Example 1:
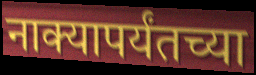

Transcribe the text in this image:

नाक्यापर्यंतच्या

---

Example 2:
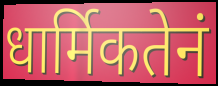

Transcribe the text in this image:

धार्मिकतेनं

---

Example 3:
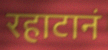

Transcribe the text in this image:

रहाटानं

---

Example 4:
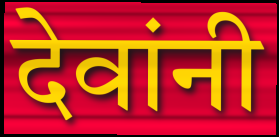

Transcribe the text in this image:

देवांनी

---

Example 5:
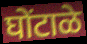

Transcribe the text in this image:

घोंटाळे